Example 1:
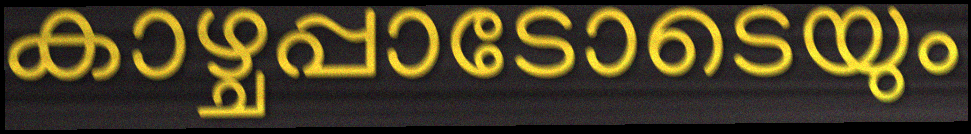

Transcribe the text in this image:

കാഴ്ചപ്പാടോടെയും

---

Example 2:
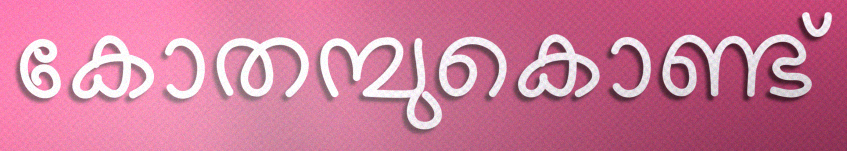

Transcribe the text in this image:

കോതമ്പുകൊണ്ട്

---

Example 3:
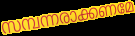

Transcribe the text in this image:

സമ്പന്നരാക്കണമേ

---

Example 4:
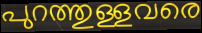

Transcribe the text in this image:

പുറത്തുള്ളവരെ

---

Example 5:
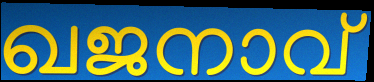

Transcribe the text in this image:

ഖജനാവ്